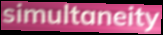
simultaneity